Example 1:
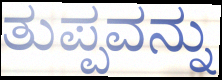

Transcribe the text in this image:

ತುಪ್ಪವನ್ನು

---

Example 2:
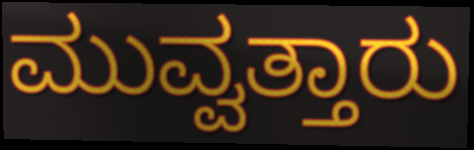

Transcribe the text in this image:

ಮುವ್ವತ್ತಾರು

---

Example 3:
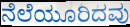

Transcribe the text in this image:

ನೆಲೆಯೂರಿದವು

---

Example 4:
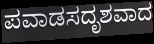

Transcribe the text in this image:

ಪವಾಡಸದೃಶವಾದ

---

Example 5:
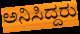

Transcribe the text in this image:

ಅನಿಸಿದ್ದರು